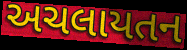
અચલાયતન